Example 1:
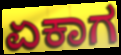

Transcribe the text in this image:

ಏಕಾಗ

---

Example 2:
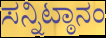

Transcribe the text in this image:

ಸನ್ನಿಟ್ಠಾನಂ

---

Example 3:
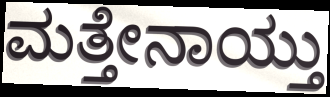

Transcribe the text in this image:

ಮತ್ತೇನಾಯ್ತು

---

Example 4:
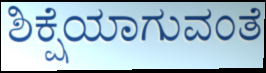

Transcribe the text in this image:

ಶಿಕ್ಷೆಯಾಗುವಂತೆ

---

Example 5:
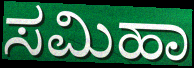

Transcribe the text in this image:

ಸಮಿಹಾ